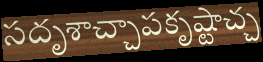
సదృశాచ్చాపకృష్టాచ్చ